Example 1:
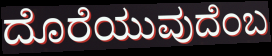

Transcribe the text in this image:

ದೊರೆಯುವುದೆಂಬ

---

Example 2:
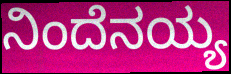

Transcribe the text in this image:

ನಿಂದೆನಯ್ಯ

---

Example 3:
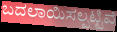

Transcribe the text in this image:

ಬದಲಾಯಿಸಲ್ಪಟ್ಟಿವೆ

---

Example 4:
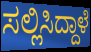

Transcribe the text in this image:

ಸಲ್ಲಿಸಿದ್ದಾಳೆ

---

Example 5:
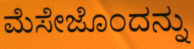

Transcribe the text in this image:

ಮೆಸೇಜೊಂದನ್ನು